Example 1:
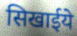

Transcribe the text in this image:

सिखाईये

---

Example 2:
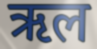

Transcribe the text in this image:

ऋल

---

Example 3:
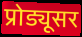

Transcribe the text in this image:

प्रोड्यूसर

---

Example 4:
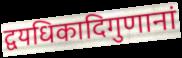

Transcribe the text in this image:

द्वयधिकादिगुणानां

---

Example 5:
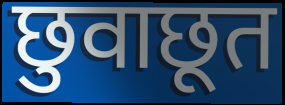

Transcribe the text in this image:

छुवाछूत